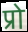
प्रो